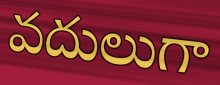
వదులుగా